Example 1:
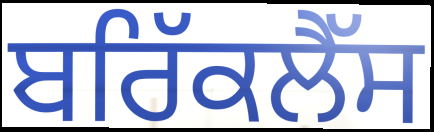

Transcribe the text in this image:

ਬਰਿੱਕਲੈੱਸ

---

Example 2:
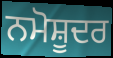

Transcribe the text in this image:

ਨਮੋਸ਼ੂਦਰ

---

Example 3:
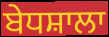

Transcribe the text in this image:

ਬੇਧਸ਼ਾਲਾ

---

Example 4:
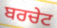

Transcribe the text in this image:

ਬਰਚੇਟ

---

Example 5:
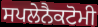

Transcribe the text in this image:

ਸਪਲੇਨੈਕਟੋਮੀ